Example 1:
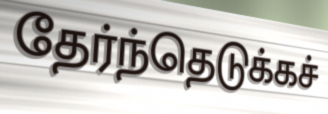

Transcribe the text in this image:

தேர்ந்தெடுக்கச்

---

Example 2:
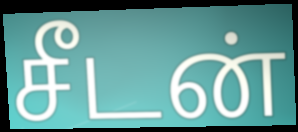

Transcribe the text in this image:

சீடன்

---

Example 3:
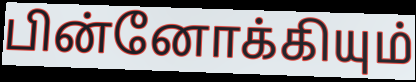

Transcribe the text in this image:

பின்னோக்கியும்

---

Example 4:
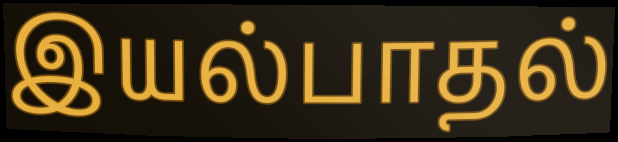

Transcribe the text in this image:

இயல்பாதல்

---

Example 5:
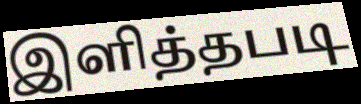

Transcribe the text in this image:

இளித்தபடி